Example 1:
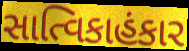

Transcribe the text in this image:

સાત્વિકાહંકાર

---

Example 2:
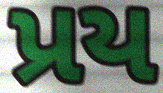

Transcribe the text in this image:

પ્રય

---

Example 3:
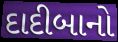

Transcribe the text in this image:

દાદીબાનો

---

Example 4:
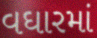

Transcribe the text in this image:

વઘારમાં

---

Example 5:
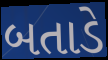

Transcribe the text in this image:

બતાડે